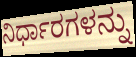
ನಿರ್ಧಾರಗಳನ್ನು